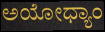
ಅಯೋಧ್ಯಾಂ